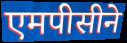
एमपीसीने